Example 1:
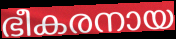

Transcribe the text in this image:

ഭീകരനായ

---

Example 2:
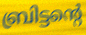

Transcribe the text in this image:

ബ്രിട്ടന്റെ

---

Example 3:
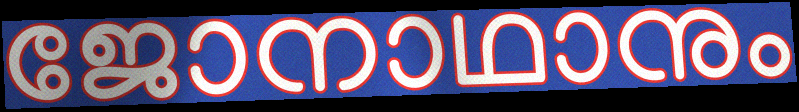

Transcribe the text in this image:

ജോനാഥാനും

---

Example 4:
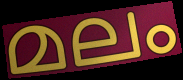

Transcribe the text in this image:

മലം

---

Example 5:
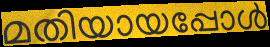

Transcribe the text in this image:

മതിയായപ്പോൾ